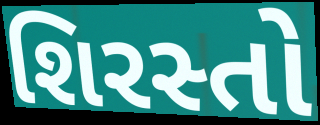
શિરસ્તો